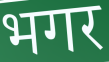
भगर